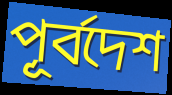
পূর্বদেশ